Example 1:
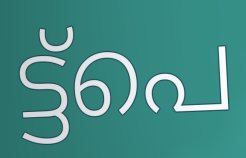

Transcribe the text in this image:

ട്ട്പെ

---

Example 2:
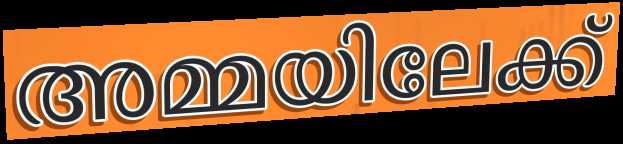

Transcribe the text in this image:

അമ്മയിലേക്ക്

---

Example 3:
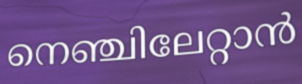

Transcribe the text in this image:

നെഞ്ചിലേറ്റാൻ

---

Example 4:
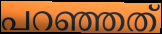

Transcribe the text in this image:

പറഞ്ഞത്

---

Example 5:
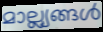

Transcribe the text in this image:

മാല്ല്യങ്ങൾ